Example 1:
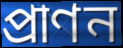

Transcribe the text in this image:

প্রাণন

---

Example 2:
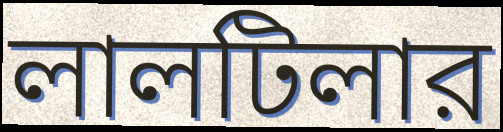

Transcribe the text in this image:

লালটিলার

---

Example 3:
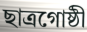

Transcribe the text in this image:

ছাত্রগোষ্ঠী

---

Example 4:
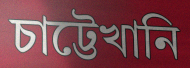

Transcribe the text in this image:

চাট্টেখানি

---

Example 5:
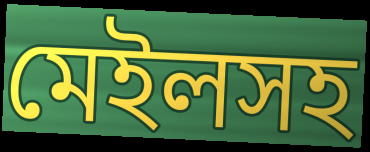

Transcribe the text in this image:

মেইলসহ